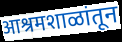
आश्रमशाळांतून